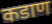
कडाण